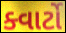
ક્વાર્ટો